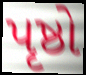
પૃષ્ઠો